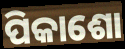
ପିକାଶୋ